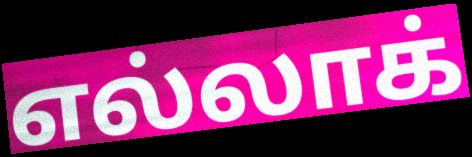
எல்லாக்